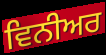
ਵਿਨੀਅਰ